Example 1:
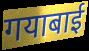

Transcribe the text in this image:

गयाबाई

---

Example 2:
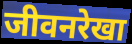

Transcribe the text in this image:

जीवनरेखा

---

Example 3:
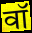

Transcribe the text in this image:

वॉ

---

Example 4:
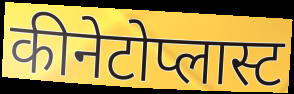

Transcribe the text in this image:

कीनेटोप्लास्ट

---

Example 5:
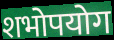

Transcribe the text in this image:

शभोपयोग